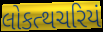
લોકત્થચરિયં